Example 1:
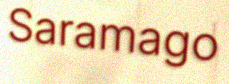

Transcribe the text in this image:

Saramago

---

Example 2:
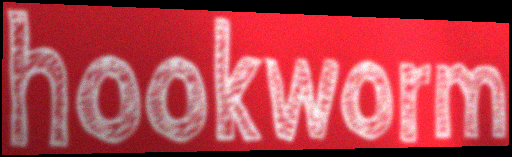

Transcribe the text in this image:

hookworm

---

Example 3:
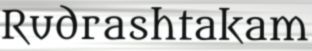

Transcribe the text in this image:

Rudrashtakam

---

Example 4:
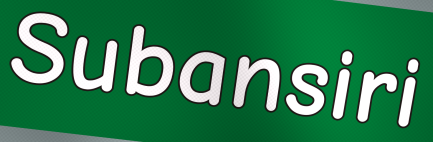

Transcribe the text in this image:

Subansiri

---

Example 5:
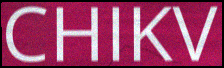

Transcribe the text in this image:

CHIKV